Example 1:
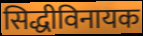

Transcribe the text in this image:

सिद्धीविनायक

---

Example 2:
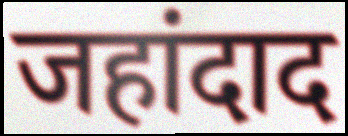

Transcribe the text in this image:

जहांदाद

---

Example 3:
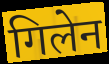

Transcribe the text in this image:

गिलेन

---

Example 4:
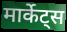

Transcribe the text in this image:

मार्केट्स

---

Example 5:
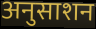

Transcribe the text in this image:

अनुसाशन